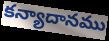
కన్యాదానము